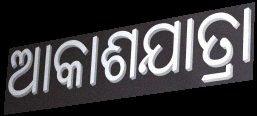
ଆକାଶଯାତ୍ରା